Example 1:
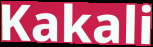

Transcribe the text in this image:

Kakali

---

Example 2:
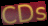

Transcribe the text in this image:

CDs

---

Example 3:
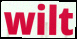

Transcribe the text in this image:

wilt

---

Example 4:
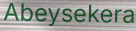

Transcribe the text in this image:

Abeysekera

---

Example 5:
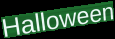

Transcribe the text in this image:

Halloween